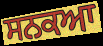
ਸਨਕਆ